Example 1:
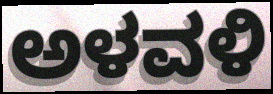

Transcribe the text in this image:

ಅಳವಳಿ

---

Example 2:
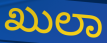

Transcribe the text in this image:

ಖುಲಾ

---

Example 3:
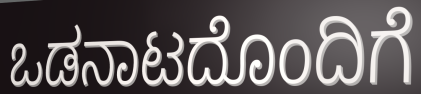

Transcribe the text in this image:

ಒಡನಾಟದೊಂದಿಗೆ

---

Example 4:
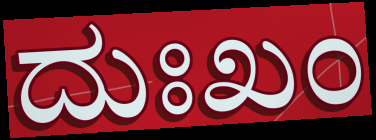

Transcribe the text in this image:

ದುಃಖಂ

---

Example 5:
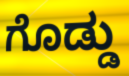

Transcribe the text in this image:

ಗೊಡ್ಡು